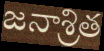
జనాశ్రిత